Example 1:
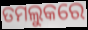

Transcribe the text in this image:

ତମଲୁକରେ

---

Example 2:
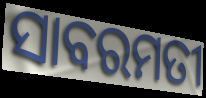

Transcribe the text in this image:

ସାବରମତୀ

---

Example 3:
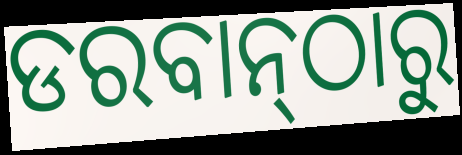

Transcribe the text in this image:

ଡରବାନ୍‌ଠାରୁ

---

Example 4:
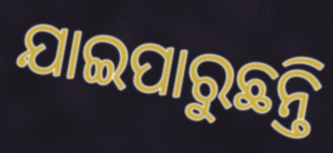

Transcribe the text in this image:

ଯାଇପାରୁଛନ୍ତି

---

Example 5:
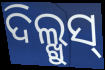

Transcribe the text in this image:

ଦିଲ୍ଖୁସ୍